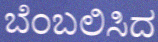
ಬೆಂಬಲಿಸಿದ